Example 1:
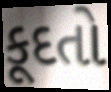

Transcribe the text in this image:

કૂદતો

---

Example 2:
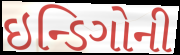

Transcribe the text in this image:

ઇન્ડિગોની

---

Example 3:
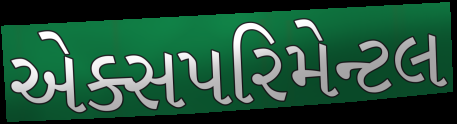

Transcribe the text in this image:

એક્સપરિમેન્ટલ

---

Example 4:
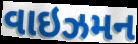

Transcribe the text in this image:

વાઇઝમન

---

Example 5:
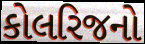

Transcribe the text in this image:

કોલરિજનો